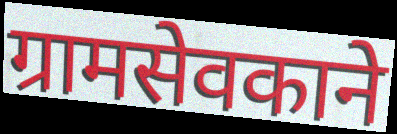
ग्रामसेवकाने